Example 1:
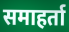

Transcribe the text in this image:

समाहर्ता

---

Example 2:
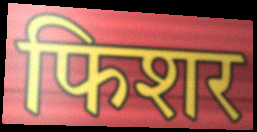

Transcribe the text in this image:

फिशर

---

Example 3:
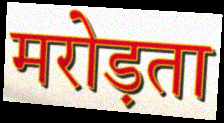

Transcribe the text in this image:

मरोड़ता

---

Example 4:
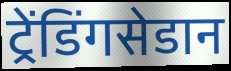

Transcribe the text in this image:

ट्रेंडिंगसेडान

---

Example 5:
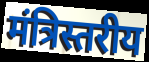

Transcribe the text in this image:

मंत्रिस्तरीय